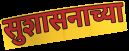
सुशासनाच्या